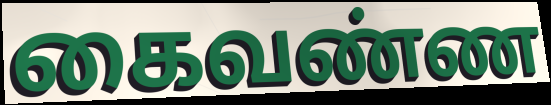
கைவண்ண